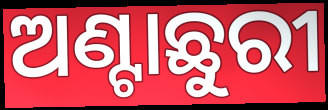
ଅଣ୍ଟାଛୁରୀ